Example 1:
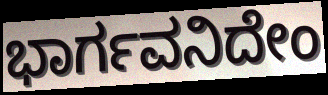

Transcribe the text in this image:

ಭಾರ್ಗವನಿದೇಂ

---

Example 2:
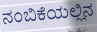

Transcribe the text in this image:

ನಂಬಿಕೆಯಲ್ಲಿನ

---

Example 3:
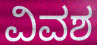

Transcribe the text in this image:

ವಿವಶ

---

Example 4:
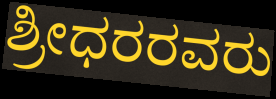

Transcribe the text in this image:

ಶ್ರೀಧರರವರು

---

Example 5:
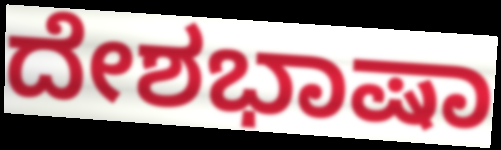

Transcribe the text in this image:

ದೇಶಭಾಷಾ